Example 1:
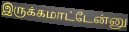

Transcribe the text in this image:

இருக்கமாட்டேன்னு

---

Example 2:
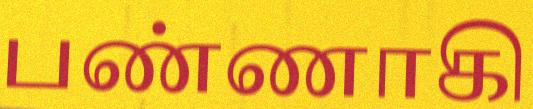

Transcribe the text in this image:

பண்ணாகி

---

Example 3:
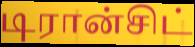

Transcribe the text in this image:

டிரான்சிட்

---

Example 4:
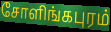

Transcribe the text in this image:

சோளிங்கபுரம்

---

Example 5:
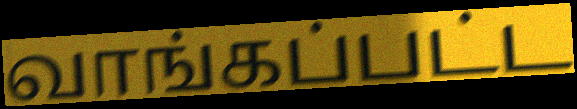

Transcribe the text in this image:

வாங்கப்பட்ட